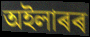
অইলাৰৰ